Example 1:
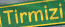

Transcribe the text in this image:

Tirmizi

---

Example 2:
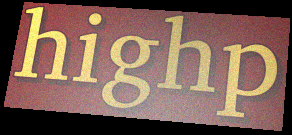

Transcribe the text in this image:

highp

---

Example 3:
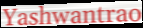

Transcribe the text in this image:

Yashwantrao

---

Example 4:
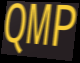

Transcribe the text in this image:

QMP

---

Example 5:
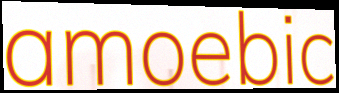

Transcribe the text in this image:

amoebic